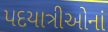
પદયાત્રીઓનાં